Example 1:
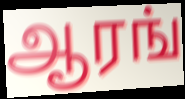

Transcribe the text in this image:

ஆரங்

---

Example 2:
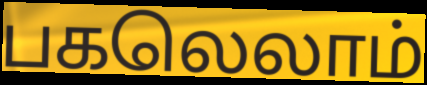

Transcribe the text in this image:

பகலெலாம்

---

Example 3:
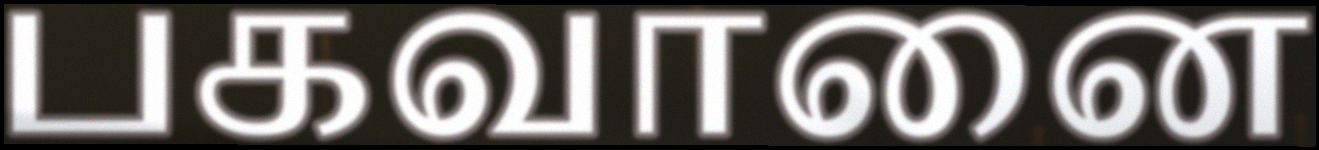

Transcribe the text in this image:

பகவானை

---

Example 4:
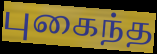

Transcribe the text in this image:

புகைந்த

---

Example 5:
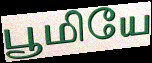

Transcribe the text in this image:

பூமியே